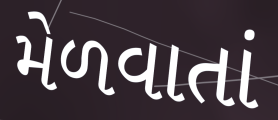
મેળવાતાં